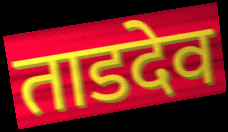
ताडदेव